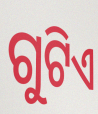
ଗୁଟିଏ